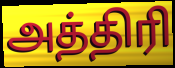
அத்திரி